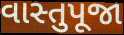
વાસ્તુપૂજા